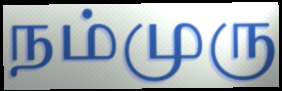
நம்முரு